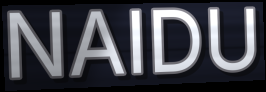
NAIDU